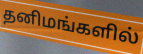
தனிமங்களில்